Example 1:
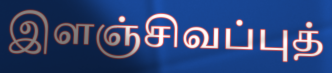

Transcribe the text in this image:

இளஞ்சிவப்புத்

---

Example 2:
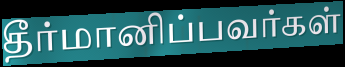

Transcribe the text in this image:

தீர்மானிப்பவர்கள்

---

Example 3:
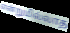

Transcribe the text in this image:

என்றுமில்லாத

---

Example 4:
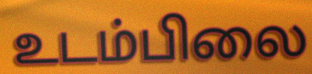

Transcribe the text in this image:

உடம்பிலை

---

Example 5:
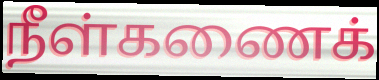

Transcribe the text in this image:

நீள்கணைக்